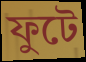
ফুটে